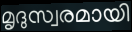
മൃദുസ്വരമായി